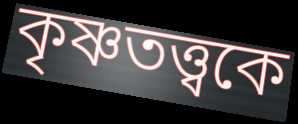
কৃষ্ণতত্ত্বকে